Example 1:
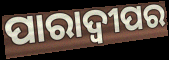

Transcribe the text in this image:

ପାରାଦ୍ବୀପର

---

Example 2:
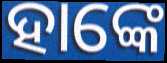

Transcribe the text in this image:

ହାଙ୍କେ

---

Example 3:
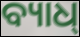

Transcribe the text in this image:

ବ୍ୟାଧ୍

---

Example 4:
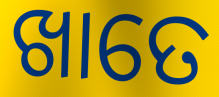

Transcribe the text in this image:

ଖାତେ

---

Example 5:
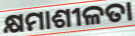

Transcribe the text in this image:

କ୍ଷମାଶୀଳତା